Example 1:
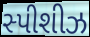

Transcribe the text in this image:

સ્પીશીઝ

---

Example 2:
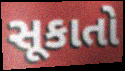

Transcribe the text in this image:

સૂકાતો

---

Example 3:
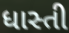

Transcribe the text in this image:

ધાસ્તી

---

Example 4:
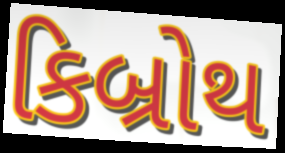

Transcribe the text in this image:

કિબ્રોથ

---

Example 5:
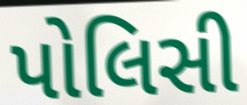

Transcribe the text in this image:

પોલિસી